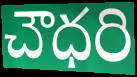
చౌధరి